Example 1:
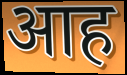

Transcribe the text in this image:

आह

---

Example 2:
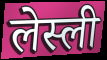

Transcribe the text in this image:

लेस्ली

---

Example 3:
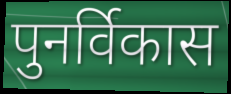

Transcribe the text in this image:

पुनर्विकास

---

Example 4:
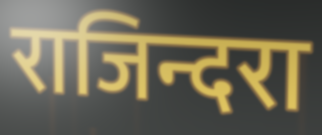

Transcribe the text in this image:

राजिन्दरा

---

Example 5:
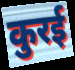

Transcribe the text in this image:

कुरई